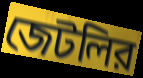
জেটলির